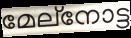
മേല്നോട്ട